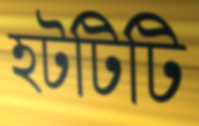
হটটিটি